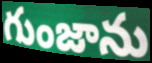
గుంజాను